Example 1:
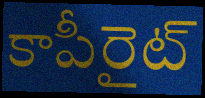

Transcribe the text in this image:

కాపీరైట్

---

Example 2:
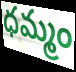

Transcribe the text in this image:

ధమ్మం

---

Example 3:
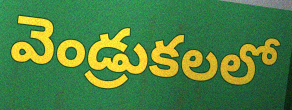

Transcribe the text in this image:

వెండ్రుకలలో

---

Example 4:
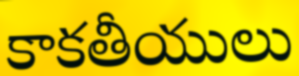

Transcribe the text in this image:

కాకతీయులు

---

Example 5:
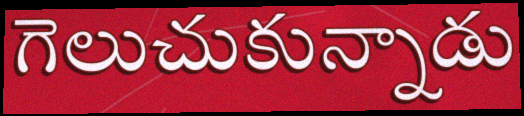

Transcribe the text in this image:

గెలుచుకున్నాడు